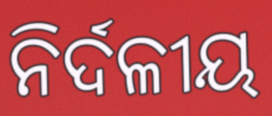
ନିର୍ଦଳୀୟ